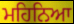
ਮਹਿਨਿਆ